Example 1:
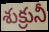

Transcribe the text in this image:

శుక్రునీ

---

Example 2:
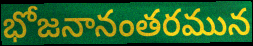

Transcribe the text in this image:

భోజనానంతరమున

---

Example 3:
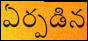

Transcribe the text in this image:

ఏర్పడిన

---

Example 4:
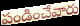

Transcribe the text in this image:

పండించేవారు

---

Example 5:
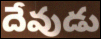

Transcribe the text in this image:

దేవుడు